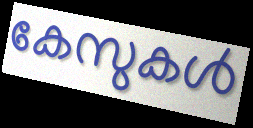
കേസുകൾ